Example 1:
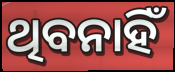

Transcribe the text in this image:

ଥିବନାହିଁ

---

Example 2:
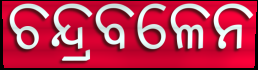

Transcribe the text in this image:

ଚନ୍ଦ୍ରବଳେନ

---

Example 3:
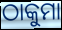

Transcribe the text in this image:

ଠାକୁମା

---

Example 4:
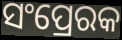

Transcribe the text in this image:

ସଂପ୍ରେରକ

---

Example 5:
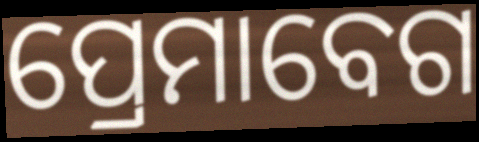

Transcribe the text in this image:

ପ୍ରେମାବେଗ